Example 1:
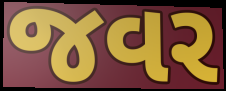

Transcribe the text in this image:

જવર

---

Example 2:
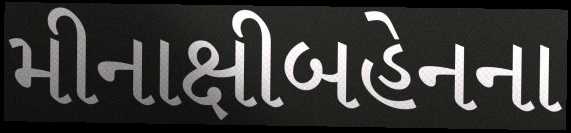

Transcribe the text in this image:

મીનાક્ષીબહેનના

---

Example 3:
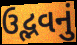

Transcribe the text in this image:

ઉદ્ભવનું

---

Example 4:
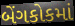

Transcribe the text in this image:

બેંગકોકમાં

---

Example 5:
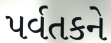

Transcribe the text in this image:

પર્વતકને